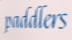
paddlers